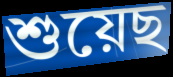
শুয়েছ